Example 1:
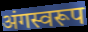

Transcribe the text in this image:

अंगस्वरूप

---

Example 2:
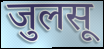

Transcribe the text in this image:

जुलसू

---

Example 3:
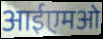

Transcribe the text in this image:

आईएमओ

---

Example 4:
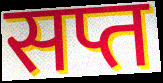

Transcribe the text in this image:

सप्त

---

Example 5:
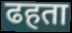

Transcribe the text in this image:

ढहता